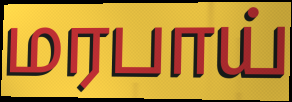
மரபாய்